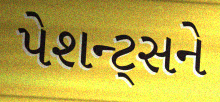
પેશન્ટ્સને